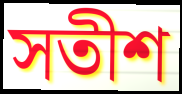
সতীশ